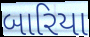
બારિયા